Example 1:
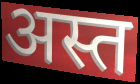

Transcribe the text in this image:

अस्त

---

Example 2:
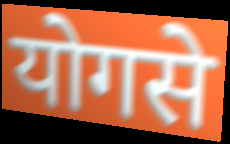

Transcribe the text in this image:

योगसे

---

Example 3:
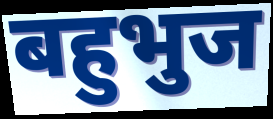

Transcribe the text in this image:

बहुभुज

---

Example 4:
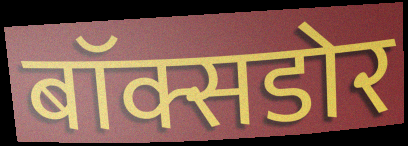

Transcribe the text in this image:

बॉक्सडोर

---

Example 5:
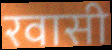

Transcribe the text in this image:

रवासी